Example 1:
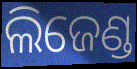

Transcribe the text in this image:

ଲିଜେଣ୍ଡ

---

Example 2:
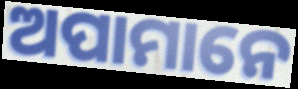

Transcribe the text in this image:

ଅପାମାନେ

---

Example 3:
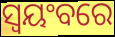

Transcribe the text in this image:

ସ୍ଵୟଂବରେ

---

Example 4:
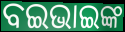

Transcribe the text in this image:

ବଇଭାଇଙ୍କ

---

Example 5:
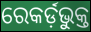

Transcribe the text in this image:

ରେକର୍ଡ଼ଭୁକ୍ତ